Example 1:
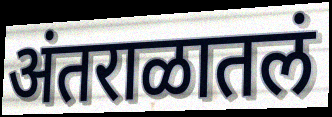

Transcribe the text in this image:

अंतराळातलं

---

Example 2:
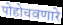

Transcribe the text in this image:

पोहोचवणारे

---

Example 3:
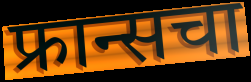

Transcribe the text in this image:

फ्रान्सचा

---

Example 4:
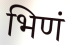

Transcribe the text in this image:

भिणं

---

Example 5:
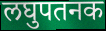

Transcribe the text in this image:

लघुपतनक